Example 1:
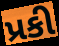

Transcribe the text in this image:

પ્રકી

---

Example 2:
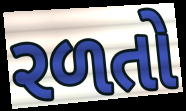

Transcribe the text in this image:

રળતો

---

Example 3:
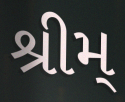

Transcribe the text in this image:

શ્રીમ્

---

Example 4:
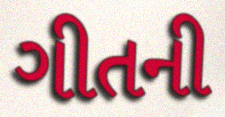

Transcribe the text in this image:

ગીતની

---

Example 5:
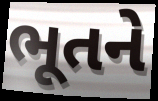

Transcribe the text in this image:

ભૂતને